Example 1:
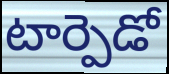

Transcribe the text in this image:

టార్పెడో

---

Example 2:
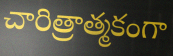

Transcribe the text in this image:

చారిత్రాత్మకంగా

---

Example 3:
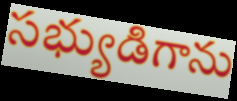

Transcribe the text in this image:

సభ్యుడిగాను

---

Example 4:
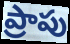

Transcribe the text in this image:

ప్రాపు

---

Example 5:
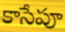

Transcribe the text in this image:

కాసేపూ